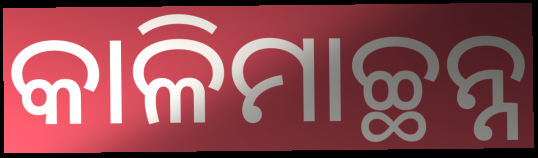
କାଳିମାଚ୍ଛନ୍ନ